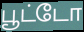
பூட்டோ